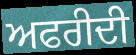
ਅਫਰੀਦੀ